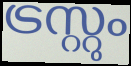
ട്രസ്റ്റും